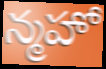
న్మహో